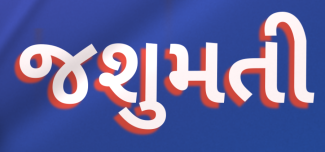
જશુમતી